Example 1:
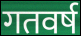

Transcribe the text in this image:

गतवर्ष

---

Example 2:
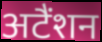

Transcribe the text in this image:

अटैंशन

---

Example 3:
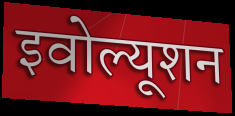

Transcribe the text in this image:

इवोल्यूशन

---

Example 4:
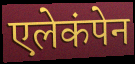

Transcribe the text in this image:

एलेकंपेन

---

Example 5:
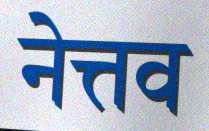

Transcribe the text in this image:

नेत्तव